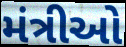
મંત્રીઓ